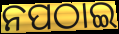
ନପଠାଇ